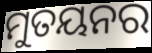
ମୁତୟନର